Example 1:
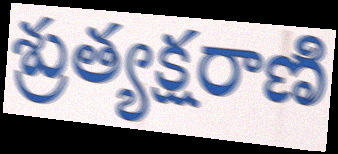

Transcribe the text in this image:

శ్రుత్యక్షరాణి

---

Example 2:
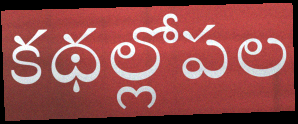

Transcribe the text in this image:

కథల్లోపల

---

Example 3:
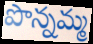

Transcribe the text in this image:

పొన్నమ్మ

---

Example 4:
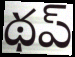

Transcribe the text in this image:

థప్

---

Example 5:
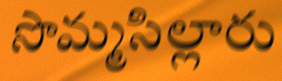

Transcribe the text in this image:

సొమ్మసిల్లారు